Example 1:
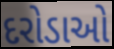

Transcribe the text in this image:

દરોડાઓ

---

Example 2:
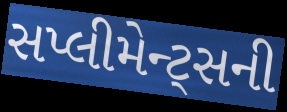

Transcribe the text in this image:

સપ્લીમેન્ટ્સની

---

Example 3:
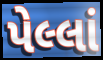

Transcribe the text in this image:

પેલ્લાં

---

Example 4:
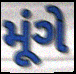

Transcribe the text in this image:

મૂંગે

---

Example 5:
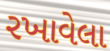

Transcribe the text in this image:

રખાવેલા